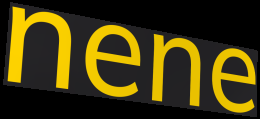
nene